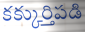
కక్కుర్తిపడి